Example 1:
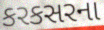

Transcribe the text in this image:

કરકસરના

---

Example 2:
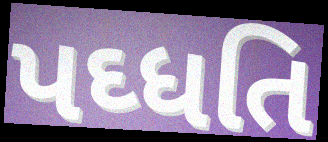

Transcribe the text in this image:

પઘ્ધતિ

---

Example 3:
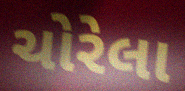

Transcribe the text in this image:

ચોરેલા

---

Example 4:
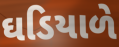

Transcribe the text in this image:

ઘડિયાળે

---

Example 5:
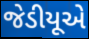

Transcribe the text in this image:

જેડીયૂએ